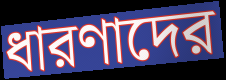
ধারণাদের